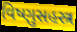
વિષ્ણુસહસ્ત્ર